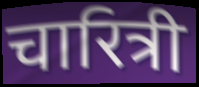
चारित्री